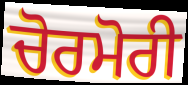
ਚੋਰਮੋਰੀ